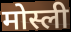
मोस्ली